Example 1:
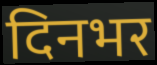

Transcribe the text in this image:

दिनभर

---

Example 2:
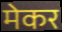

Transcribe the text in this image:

मेकर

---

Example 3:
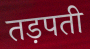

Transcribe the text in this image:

तड़पती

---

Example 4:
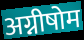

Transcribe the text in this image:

अग्नीषोम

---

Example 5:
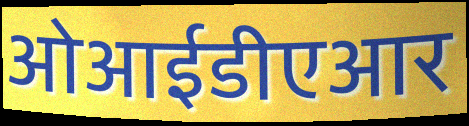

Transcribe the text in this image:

ओआईडीएआर